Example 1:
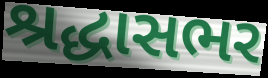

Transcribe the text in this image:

શ્રદ્ધાસભર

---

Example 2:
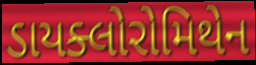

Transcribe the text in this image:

ડાયક્લોરોમિથેન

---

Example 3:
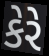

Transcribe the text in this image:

કેરે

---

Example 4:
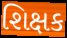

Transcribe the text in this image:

શિક્ષક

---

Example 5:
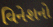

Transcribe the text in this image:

વિનેશનો